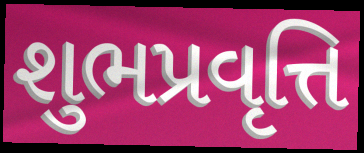
શુભપ્રવૃત્તિ